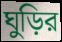
ঘুড়ির